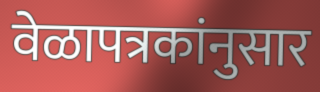
वेळापत्रकांनुसार